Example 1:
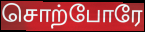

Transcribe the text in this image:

சொற்போரே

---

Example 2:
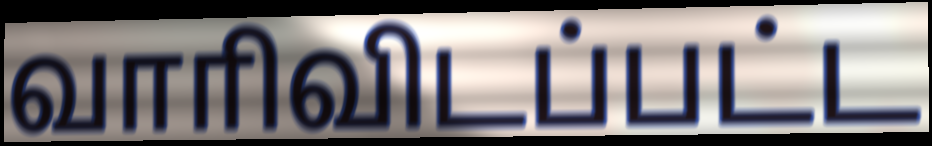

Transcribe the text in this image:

வாரிவிடப்பட்ட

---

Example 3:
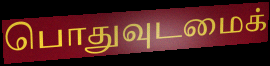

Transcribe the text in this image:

பொதுவுடமைக்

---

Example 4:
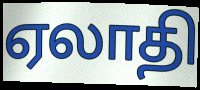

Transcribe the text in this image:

ஏலாதி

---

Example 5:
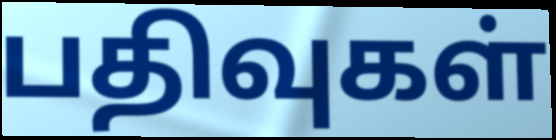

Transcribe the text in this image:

பதிவுகள்